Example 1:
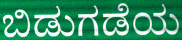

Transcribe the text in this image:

ಬಿಡುಗಡೆಯ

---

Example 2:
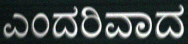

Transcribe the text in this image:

ಎಂದರಿವಾದ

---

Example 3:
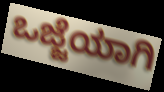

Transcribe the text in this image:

ಒಜ್ಜೆಯಾಗಿ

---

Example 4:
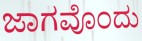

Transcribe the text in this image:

ಜಾಗವೊಂದು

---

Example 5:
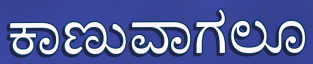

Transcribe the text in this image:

ಕಾಣುವಾಗಲೂ